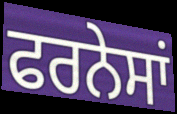
ਫਰਨੇਸਾਂ